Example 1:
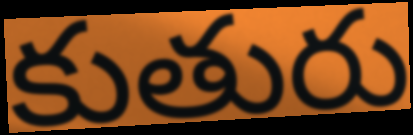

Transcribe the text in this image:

కుతురు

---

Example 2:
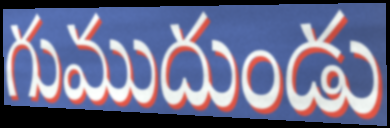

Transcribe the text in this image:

గుముదుండు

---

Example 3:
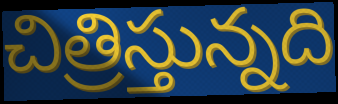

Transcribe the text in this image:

చిత్రిస్తున్నది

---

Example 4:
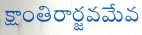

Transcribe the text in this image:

క్షాంతిరార్జవమేవ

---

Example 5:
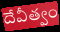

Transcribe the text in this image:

దేవీత్వం